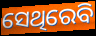
ସେଥିରେବି